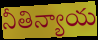
నీతిన్యాయ